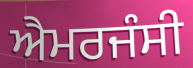
ਐਮਰਜੰਸੀ